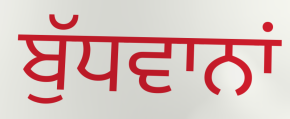
ਬੁੱਧਵਾਨਾਂ